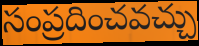
సంప్రదించవచ్చు